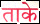
ताके